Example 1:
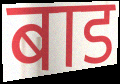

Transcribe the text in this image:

बाड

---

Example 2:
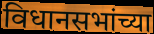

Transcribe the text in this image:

विधानसभांच्या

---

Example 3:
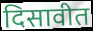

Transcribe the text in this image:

दिसावीत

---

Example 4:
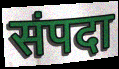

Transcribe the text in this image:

संपदा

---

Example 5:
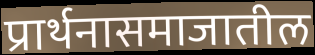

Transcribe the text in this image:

प्रार्थनासमाजातील